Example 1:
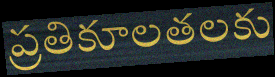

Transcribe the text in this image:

ప్రతికూలతలకు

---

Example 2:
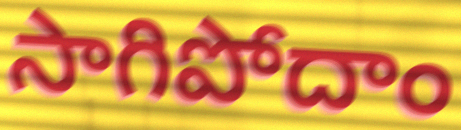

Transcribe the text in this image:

సాగిపోదాం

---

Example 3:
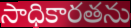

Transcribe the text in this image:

సాధికారతను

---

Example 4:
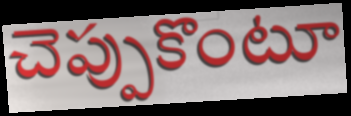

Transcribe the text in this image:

చెప్పుకొంటూ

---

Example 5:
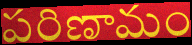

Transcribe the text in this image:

పరిణామం